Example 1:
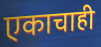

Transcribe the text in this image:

एकाचाही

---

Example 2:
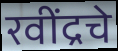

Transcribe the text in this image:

रवींद्रचे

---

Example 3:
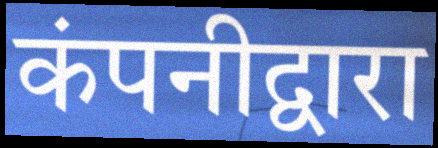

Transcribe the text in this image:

कंपनीद्वारा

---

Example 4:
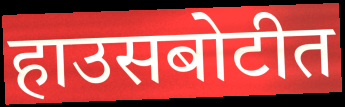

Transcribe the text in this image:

हाउसबोटीत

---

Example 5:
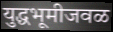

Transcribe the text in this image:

युद्धभूमीजवळ